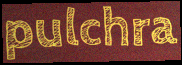
pulchra